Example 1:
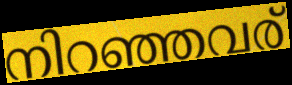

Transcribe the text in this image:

നിറഞ്ഞവര്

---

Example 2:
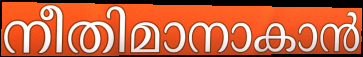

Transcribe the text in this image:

നീതിമാനാകാൻ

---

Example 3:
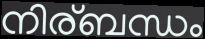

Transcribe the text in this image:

നിര്ബന്ധം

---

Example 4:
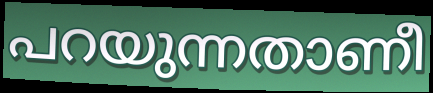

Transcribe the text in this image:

പറയുന്നതാണീ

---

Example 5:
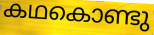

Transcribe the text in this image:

കഥകൊണ്ടു